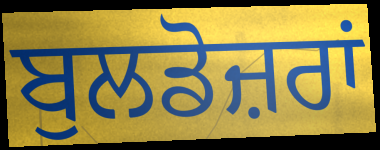
ਬੁਲਡੋਜ਼ਰਾਂ